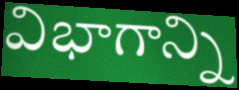
విభాగాన్ని